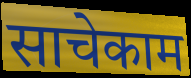
साचेकाम